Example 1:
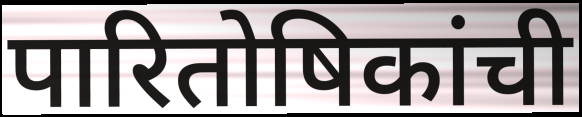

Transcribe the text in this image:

पारितोषिकांची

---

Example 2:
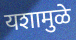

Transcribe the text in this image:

यशामुळे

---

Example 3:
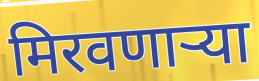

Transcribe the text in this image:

मिरवणाऱ्या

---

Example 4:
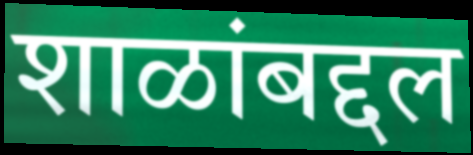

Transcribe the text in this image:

शाळांबद्दल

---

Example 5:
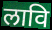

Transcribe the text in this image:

लावि